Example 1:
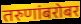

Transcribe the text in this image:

तरुणांबरोबर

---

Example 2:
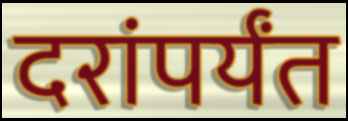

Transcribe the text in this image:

दरांपर्यंत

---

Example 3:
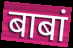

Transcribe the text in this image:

बाबां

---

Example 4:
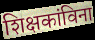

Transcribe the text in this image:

शिक्षकांविना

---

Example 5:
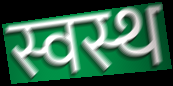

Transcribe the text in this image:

स्वस्थ